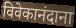
विवेकानंदाना